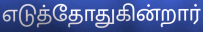
எடுத்தோதுகின்றார்